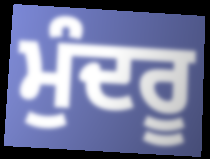
ਮੁੰਦਰੂ